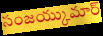
సంజయ్కుమార్